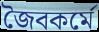
জৈবকর্মে